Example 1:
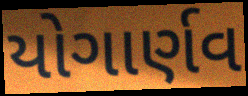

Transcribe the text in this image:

યોગાર્ણવ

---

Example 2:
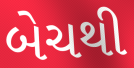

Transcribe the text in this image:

બેચથી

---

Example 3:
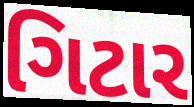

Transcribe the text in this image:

ગિટાર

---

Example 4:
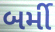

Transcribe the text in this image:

બર્મી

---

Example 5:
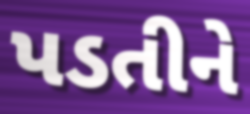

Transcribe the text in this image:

પડતીને